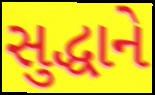
સુદ્ધાને